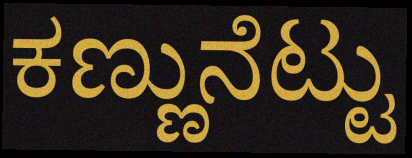
ಕಣ್ಣುನೆಟ್ಟು